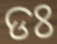
ଡଃ